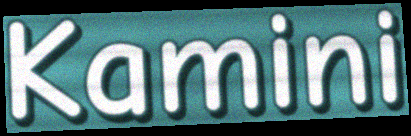
Kamini